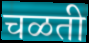
चळती